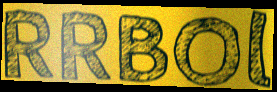
RRBOl